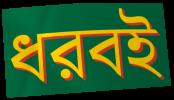
ধরবই